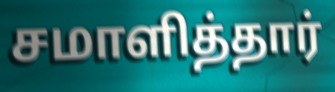
சமாளித்தார்